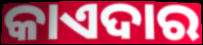
କାଏଦାର